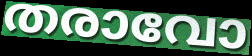
തരാവോ